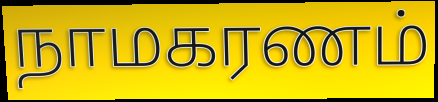
நாமகரணம்